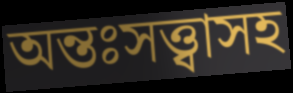
অন্তঃসত্ত্বাসহ